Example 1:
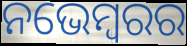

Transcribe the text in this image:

ନଭେମ୍ବରର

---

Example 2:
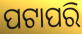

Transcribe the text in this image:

ପଟାପରି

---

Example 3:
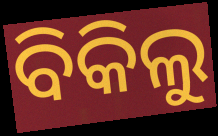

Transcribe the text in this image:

ବିକିଲୁ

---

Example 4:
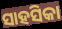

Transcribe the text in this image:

ସାହସିକା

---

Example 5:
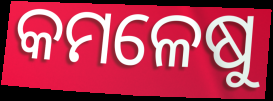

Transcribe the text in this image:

କମଳେଷୁ